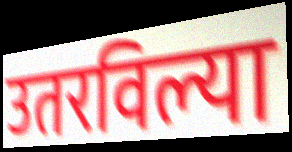
उतरविल्या